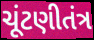
ચૂંટણીતંત્ર